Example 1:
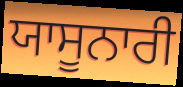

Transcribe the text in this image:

ਯਾਸੂਨਾਰੀ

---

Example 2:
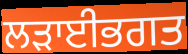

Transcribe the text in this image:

ਲੜਾਈਭਗਤ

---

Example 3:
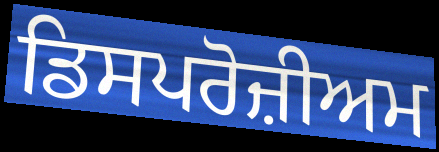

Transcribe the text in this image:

ਡਿਸਪਰੋਜ਼ੀਅਮ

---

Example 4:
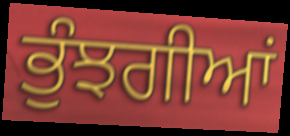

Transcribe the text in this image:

ਭੁੰਝਗੀਆਂ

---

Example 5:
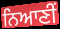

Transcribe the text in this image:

ਨਿਆਣੀਂ